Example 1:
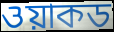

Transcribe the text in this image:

ওয়াকড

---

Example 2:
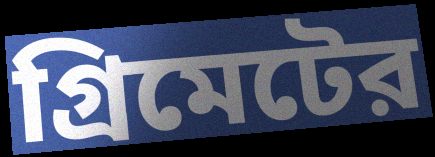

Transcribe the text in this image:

গ্রিমেটের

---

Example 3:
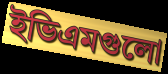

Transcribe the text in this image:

ইভিএমগুলো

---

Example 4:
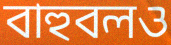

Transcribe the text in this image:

বাহুবলও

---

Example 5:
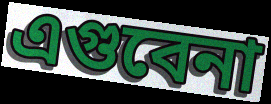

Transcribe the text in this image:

এগুবেনা